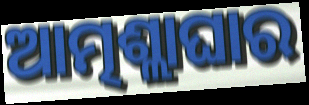
ଆତ୍ମଶ୍ଲାଘାର